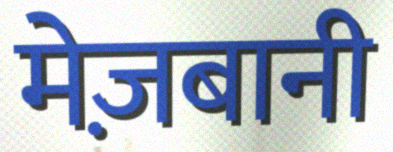
मेज़बानी